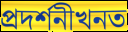
প্ৰদৰ্শনীখনত